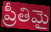
ప్రీతిమై